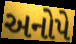
અનોપે